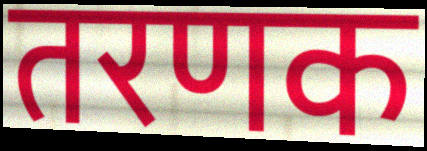
तरणक